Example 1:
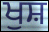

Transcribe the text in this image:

ਖੁਸ਼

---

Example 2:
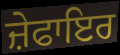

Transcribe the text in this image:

ਜ਼ੇਫਾਇਰ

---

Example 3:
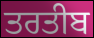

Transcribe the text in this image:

ਤਰਤੀਬ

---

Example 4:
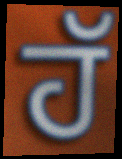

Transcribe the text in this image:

ਹੱ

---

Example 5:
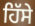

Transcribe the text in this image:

ਹਿੱਸੇ